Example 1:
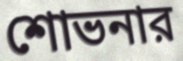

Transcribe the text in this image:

শোভনার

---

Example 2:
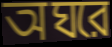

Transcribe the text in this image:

অঘরে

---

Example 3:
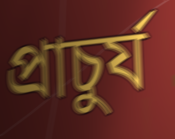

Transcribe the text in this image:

প্রাচুর্য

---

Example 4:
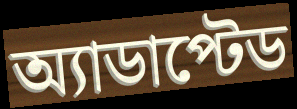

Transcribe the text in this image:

অ্যাডাপ্টেড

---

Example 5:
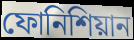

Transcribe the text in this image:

ফোনিশিয়ান